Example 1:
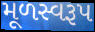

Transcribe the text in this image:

મૂળસ્વરૂપ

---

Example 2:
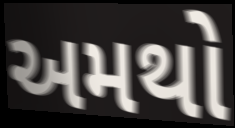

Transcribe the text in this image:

અમથો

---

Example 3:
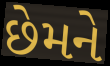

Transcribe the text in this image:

છેમને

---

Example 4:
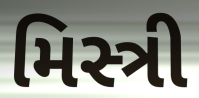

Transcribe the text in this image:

મિસ્ત્રી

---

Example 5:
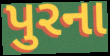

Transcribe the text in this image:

પુરના